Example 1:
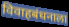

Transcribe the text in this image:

विवाहबंधनाला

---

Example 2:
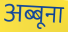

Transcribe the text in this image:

अब्बूना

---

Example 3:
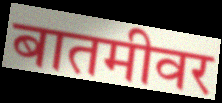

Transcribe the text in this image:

बातमीवर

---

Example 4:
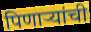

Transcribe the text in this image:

पिणाऱ्यांची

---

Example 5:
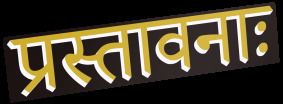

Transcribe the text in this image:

प्रस्तावनाः